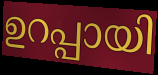
ഉറപ്പായി